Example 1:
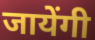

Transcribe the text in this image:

जायेंगी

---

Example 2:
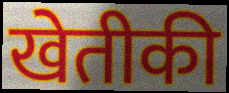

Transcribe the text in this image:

खेतीकी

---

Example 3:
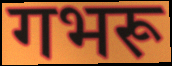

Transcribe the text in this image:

गभरू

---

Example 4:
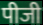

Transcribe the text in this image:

पीजी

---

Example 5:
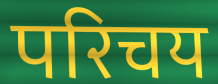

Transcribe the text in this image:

परिचय